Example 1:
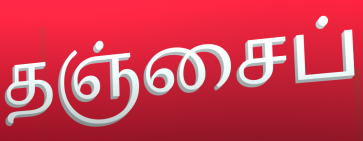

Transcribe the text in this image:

தஞ்சைப்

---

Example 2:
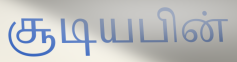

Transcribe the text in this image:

சூடியபின்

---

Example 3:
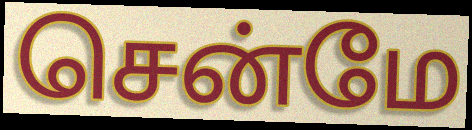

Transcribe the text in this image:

சென்மே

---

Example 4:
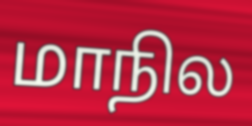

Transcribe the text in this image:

மாநில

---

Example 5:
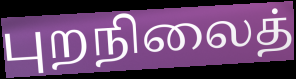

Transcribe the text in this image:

புறநிலைத்